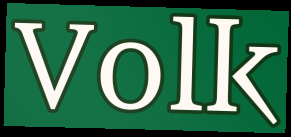
Volk